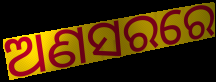
ଅଣସରରେ